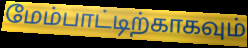
மேம்பாட்டிற்காகவும்